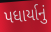
પધાર્યાનું